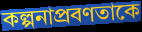
কল্পনাপ্রবণতাকে